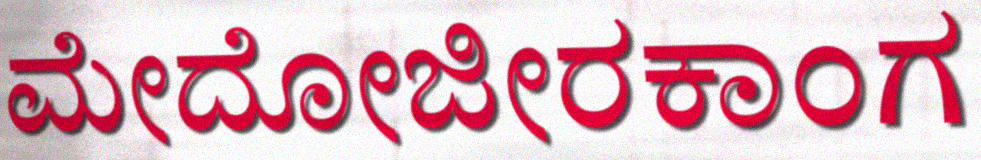
ಮೇದೋಜೀರಕಾಂಗ